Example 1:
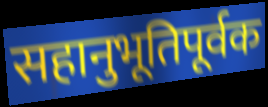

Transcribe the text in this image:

सहानुभूतिपूर्वक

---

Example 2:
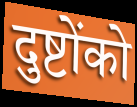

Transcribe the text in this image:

दुष्टोंको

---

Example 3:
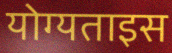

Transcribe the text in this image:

योग्यताइस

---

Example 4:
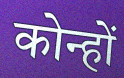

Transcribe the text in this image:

कोन्हों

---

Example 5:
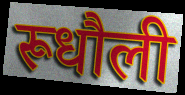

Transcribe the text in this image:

रूधौली